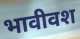
भावीवश